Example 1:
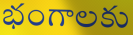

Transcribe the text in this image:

భంగాలకు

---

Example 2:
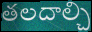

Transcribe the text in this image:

తలదాల్చి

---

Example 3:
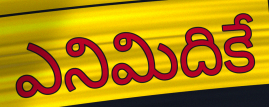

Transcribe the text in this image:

ఎనిమిదికే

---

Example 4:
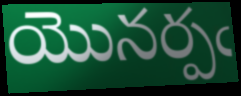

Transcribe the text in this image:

యొనర్పఁ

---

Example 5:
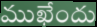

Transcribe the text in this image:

ముఖేందు